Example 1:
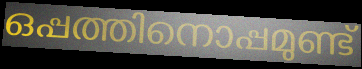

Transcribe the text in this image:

ഒപ്പത്തിനൊപ്പമുണ്ട്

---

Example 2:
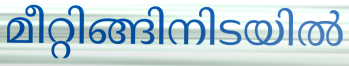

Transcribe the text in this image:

മീറ്റിങ്ങിനിടയിൽ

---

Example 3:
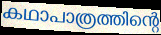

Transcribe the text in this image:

കഥാപാത്രത്തിന്റെ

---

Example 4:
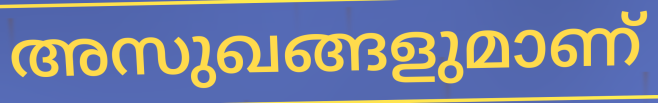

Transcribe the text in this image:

അസുഖങ്ങളുമാണ്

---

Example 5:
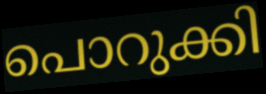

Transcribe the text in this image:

പൊറുക്കി